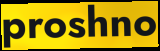
proshno